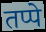
तप्पे